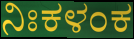
ನಿಃಕಳಂಕ